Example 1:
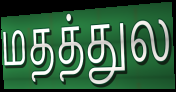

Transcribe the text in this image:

மதத்துல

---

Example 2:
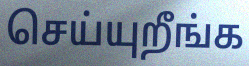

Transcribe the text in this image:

செய்யுறீங்க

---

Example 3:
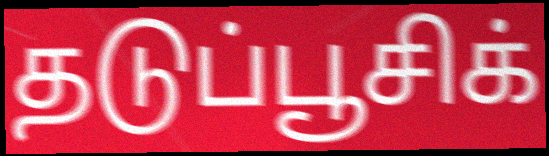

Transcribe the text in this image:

தடுப்பூசிக்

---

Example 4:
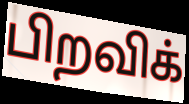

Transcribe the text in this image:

பிறவிக்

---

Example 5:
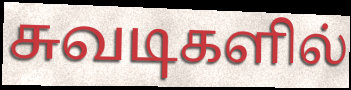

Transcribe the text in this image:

சுவடிகளில்